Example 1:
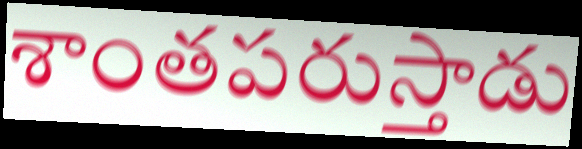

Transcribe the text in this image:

శాంతపరుస్తాడు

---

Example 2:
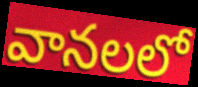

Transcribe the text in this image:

వానలలో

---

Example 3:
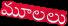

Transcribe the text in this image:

మూలలు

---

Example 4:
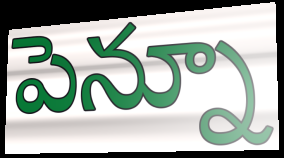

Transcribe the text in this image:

పెన్నూ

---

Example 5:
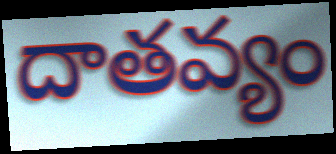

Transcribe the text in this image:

దాతవ్యం